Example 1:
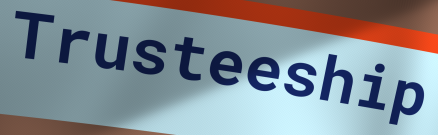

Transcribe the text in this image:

Trusteeship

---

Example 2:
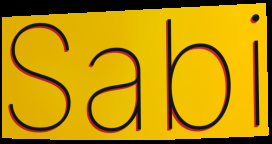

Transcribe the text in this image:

Sabi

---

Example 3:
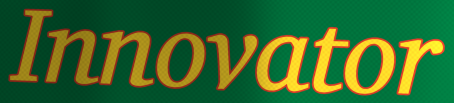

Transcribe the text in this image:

Innovator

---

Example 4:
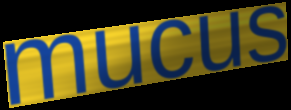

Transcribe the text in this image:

mucus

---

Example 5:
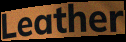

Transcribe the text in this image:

Leather